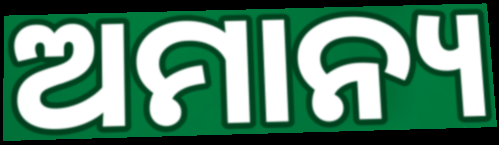
ଅମାନ୍ୟ